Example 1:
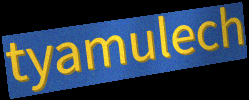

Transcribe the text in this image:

tyamulech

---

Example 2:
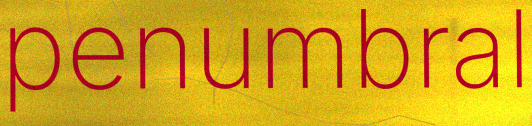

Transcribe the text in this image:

penumbral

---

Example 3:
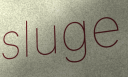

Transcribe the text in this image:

sluge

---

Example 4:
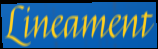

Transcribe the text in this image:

Lineament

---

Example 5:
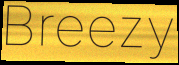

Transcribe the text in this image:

Breezy